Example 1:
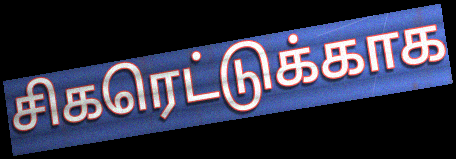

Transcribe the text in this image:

சிகரெட்டுக்காக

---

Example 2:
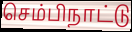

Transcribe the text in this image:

செம்பிநாட்டு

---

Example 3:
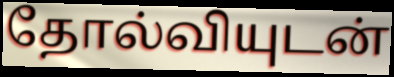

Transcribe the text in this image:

தோல்வியுடன்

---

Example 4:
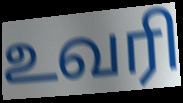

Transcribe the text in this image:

உவரி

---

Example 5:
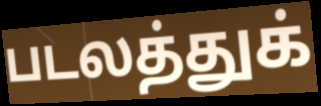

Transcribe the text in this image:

படலத்துக்